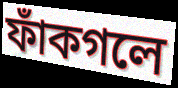
ফাঁকগলে